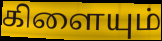
கிளையும்